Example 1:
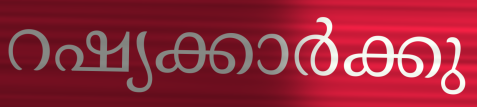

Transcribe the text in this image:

റഷ്യക്കാർക്കു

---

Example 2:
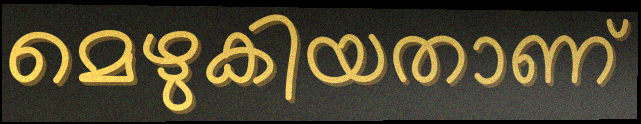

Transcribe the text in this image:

മെഴുകിയതാണ്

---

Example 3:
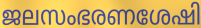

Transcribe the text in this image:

ജലസംഭരണശേഷി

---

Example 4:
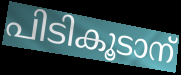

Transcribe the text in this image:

പിടികൂടാന്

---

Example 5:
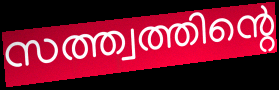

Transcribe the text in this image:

സത്ത്വത്തിന്റെ